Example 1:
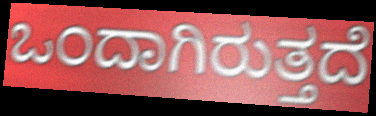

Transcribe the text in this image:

ಒಂದಾಗಿರುತ್ತದೆ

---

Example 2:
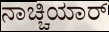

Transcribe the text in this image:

ನಾಚ್ಚಿಯಾರ್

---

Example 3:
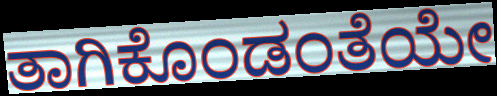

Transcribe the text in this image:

ತಾಗಿಕೊಂಡಂತೆಯೇ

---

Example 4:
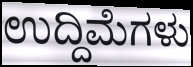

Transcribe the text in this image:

ಉದ್ದಿಮೆಗಳು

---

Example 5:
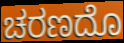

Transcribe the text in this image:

ಚರಣದೊ